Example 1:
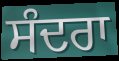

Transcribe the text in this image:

ਸੰਦਰਾ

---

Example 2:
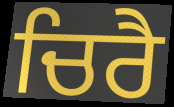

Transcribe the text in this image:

ਚਿਰੈ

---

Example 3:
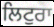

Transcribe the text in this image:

ਲਿਟੁਰਾ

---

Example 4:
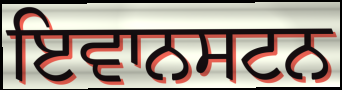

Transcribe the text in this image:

ਇਵਾਨਸਟਨ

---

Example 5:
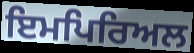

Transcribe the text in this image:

ਇਮਪਿਰਿਅਲ